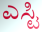
ಎಸ್ಟಿ